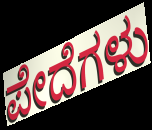
ಪೇದೆಗಳು